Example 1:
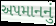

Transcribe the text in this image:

અપમાનનું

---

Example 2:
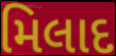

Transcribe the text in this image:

મિલાદ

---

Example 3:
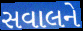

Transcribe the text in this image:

સવાલને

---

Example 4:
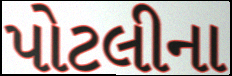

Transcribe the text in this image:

પોટલીના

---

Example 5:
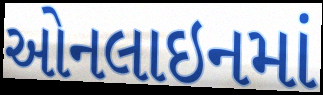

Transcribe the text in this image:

ઓનલાઇનમાં